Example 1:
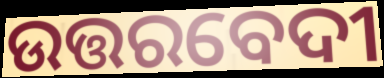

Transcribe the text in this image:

ଉତ୍ତରବେଦୀ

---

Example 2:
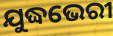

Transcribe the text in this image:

ଯୁଦ୍ଧଭେରୀ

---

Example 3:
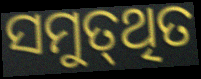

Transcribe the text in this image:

ସମୁତ୍‌ଥିତ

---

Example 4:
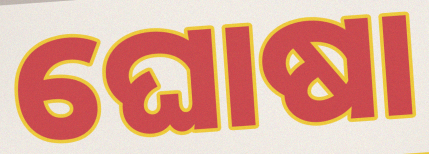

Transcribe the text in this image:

ଘୋଷା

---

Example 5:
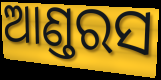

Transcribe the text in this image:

ଆଣ୍ଡରସ